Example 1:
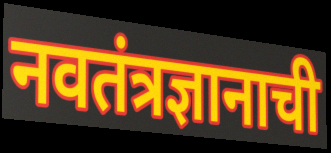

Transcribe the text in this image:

नवतंत्रज्ञानाची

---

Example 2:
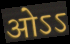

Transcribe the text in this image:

ओऽऽ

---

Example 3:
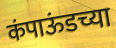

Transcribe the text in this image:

कंपाऊंडच्या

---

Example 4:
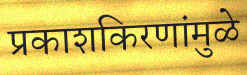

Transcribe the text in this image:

प्रकाशकिरणांमुळे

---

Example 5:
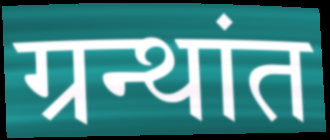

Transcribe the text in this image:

ग्रन्थांत